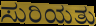
ಸುರಿಯತು